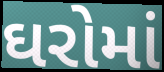
ઘરોમાં